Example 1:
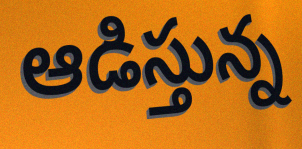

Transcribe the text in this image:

ఆడిస్తున్న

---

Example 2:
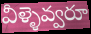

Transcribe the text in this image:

వీళ్ళెవ్వరూ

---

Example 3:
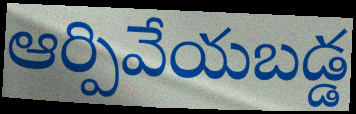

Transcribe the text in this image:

ఆర్పివేయబడ్డ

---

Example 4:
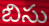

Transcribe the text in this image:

బిసు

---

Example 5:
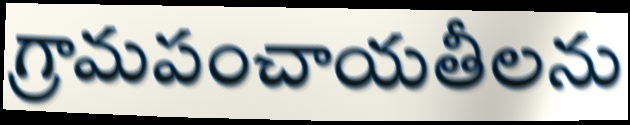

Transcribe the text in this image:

గ్రామపంచాయతీలను